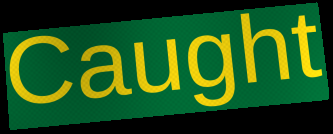
Caught